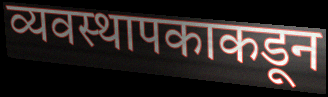
व्यवस्थापकाकडून